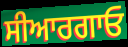
ਸੀਆਰਗਾਓ